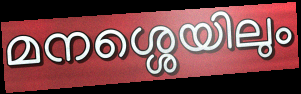
മനശ്ശെയിലും